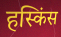
हस्किंस